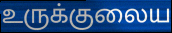
உருக்குலைய